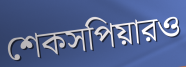
শেকসপিয়ারও